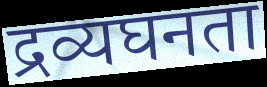
द्रव्यघनता